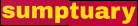
sumptuary